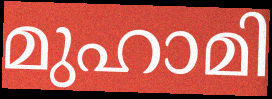
മുഹാമി